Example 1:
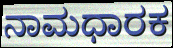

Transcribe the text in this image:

ನಾಮಧಾರಕ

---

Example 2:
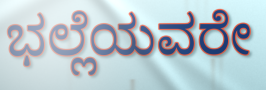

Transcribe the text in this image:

ಭಲ್ಲೆಯವರೇ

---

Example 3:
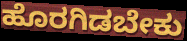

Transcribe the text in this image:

ಹೊರಗಿಡಬೇಕು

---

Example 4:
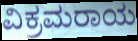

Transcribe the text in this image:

ವಿಕ್ರಮರಾಯ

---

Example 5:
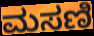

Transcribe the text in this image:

ಮಸಣಿ